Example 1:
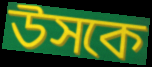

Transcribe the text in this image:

উসকে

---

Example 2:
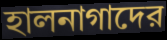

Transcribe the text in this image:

হালনাগাদের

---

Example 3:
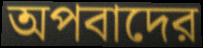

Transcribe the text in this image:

অপবাদের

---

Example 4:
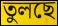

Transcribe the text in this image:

তুলছে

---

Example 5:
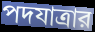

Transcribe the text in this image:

পদযাত্রার